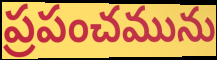
ప్రపంచమును